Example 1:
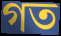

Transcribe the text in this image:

গত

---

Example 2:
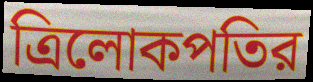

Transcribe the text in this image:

ত্রিলোকপতির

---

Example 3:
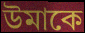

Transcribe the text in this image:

উমাকে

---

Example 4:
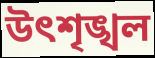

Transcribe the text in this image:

উৎশৃঙ্খল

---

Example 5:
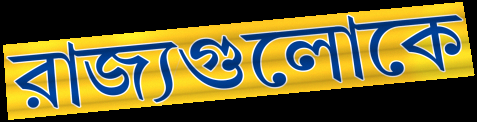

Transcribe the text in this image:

রাজ্যগুলোকে